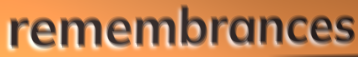
remembrances